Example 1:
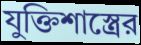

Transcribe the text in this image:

যুক্তিশাস্ত্রের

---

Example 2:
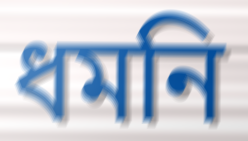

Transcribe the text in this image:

ধমনি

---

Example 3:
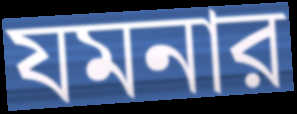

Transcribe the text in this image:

যমনার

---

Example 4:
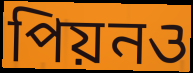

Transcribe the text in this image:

পিয়নও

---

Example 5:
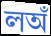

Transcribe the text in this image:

লঅঁ